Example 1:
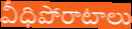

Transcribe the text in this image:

వీధిపోరాటాలు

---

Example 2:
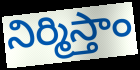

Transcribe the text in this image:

నిర్మిస్తాం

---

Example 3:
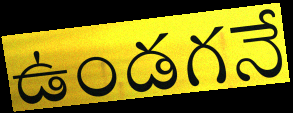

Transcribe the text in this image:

ఉండగనే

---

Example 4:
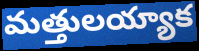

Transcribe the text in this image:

మత్తులయ్యాక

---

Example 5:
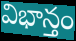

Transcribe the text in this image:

విభాన్తం